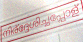
നിര്ദ്ദേശിച്ചപ്പോള്